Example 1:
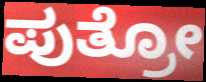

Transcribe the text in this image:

ಪುತ್ರೋ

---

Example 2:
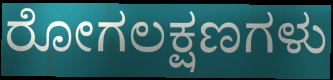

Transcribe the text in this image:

ರೋಗಲಕ್ಷಣಗಳು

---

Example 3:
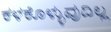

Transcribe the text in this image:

ಕಳಕೊಳ್ಳುವುದಿಲ್ಲ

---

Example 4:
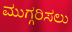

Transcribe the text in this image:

ಮುಗ್ಗರಿಸಲು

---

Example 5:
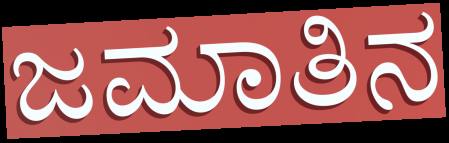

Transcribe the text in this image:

ಜಮಾತಿನ